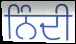
ਨਿੰਦੀ